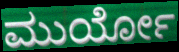
ಮುರ್ಯೋ